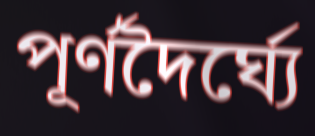
পূর্ণদৈর্ঘ্যে